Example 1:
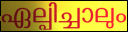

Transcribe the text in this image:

ഏല്പിച്ചാലും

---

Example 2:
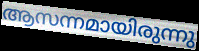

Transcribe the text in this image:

ആസന്നമായിരുന്നു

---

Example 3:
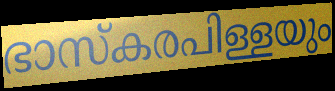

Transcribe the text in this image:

ഭാസ്കരപിള്ളയും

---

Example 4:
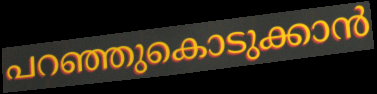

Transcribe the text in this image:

പറഞ്ഞുകൊടുക്കാൻ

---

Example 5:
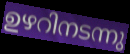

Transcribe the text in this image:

ഉഴറിനടന്നു